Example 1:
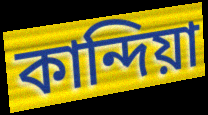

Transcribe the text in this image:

কান্দিয়া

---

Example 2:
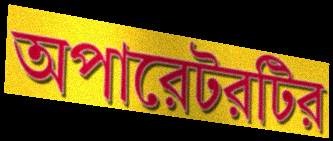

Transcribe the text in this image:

অপারেটরটির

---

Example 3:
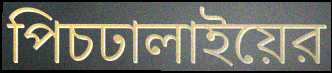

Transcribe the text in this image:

পিচঢালাইয়ের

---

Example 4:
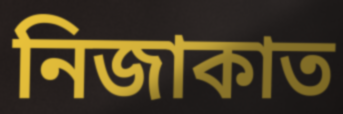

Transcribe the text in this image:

নিজাকাত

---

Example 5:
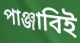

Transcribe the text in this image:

পাঞ্জাবিই